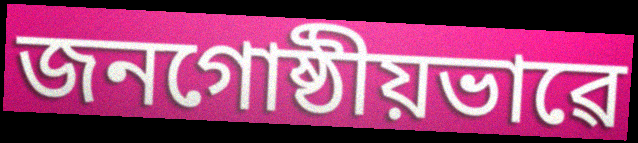
জনগোষ্ঠীয়ভাৱে